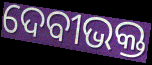
ଦେବୀଭକ୍ତ